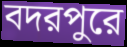
বদরপুরে